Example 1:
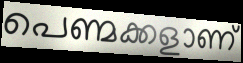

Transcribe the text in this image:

പെണ്മക്കളാണ്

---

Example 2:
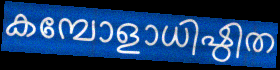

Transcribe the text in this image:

കമ്പോളാധിഷ്ഠിത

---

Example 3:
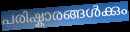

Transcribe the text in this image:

പരിഷ്കാരങ്ങൾക്കും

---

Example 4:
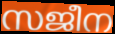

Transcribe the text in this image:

സജീന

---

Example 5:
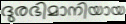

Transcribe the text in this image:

ദുരഭിമാനിയായ